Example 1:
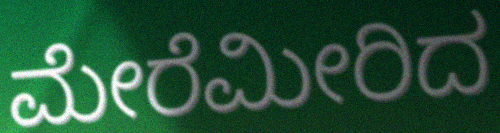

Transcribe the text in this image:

ಮೇರೆಮೀರಿದ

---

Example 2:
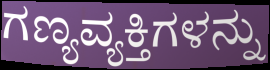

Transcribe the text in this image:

ಗಣ್ಯವ್ಯಕ್ತಿಗಳನ್ನು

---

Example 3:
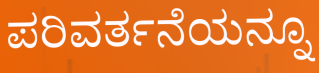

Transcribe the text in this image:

ಪರಿವರ್ತನೆಯನ್ನೂ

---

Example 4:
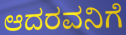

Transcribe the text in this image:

ಆದರವನಿಗೆ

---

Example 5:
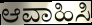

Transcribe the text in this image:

ಆವಾಹಿಸಿ